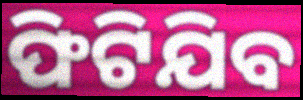
ଫିଟିଯିବ